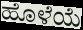
ಹೊಳೆಯೆ